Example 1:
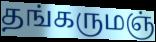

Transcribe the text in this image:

தங்கருமஞ்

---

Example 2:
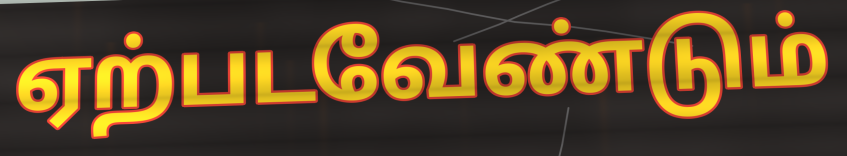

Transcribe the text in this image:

ஏற்படவேண்டும்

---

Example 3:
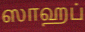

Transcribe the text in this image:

ஸாஹப்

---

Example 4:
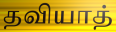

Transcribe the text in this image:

தவியாத்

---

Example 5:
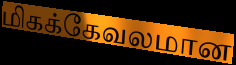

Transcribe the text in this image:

மிகக்கேவலமான